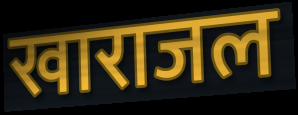
खाराजल